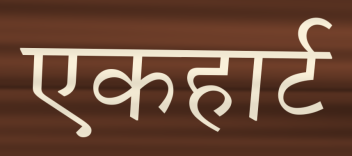
एकहार्ट